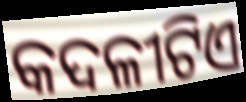
କଦଳୀଟିଏ